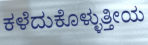
ಕಳೆದುಕೊಳ್ಳುತ್ತೀಯ